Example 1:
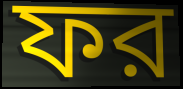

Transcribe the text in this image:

ফর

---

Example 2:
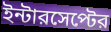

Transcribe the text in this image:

ইন্টারসেপ্টের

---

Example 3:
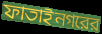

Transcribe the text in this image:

ফাতাইনগরের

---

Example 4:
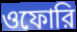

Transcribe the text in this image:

ওফোরি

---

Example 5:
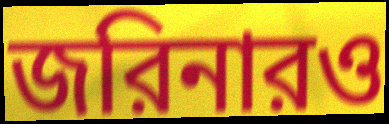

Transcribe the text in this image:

জরিনারও